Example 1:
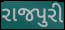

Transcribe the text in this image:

રાજપુરી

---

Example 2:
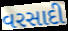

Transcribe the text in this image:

વરસાદી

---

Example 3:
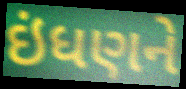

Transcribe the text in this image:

ઇંધણને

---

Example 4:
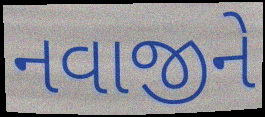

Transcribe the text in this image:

નવાજીને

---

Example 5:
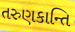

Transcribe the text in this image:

તરુણકાન્તિ